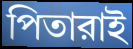
পিতারাই